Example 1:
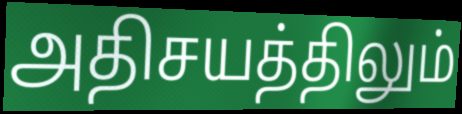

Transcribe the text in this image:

அதிசயத்திலும்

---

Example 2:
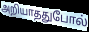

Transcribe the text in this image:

அறியாததுபோல்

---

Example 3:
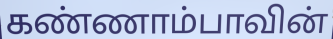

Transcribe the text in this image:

கண்ணாம்பாவின்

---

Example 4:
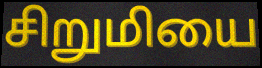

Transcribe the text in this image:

சிறுமியை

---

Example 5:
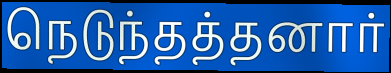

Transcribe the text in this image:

நெடுந்தத்தனார்